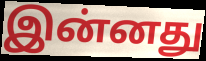
இன்னது